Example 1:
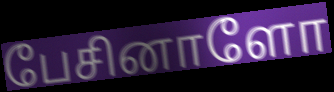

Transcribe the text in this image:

பேசினாளோ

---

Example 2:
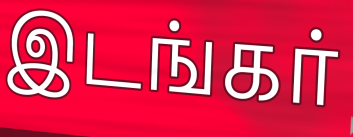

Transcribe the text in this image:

இடங்கர்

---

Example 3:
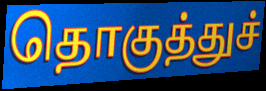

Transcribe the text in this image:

தொகுத்துச்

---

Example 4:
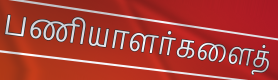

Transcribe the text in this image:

பணியாளர்களைத்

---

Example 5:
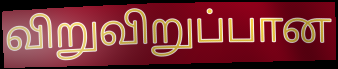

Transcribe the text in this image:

விறுவிறுப்பான